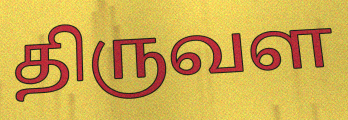
திருவள